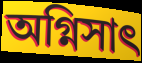
অগ্নিসাৎ